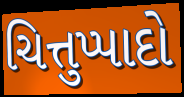
ચિત્તુપ્પાદો